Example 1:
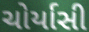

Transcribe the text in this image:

ચોર્યાસી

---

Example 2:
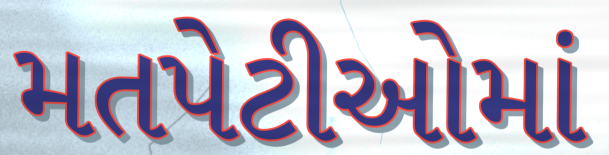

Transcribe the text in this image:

મતપેટીઓમાં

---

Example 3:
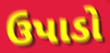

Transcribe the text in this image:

ઉપાડો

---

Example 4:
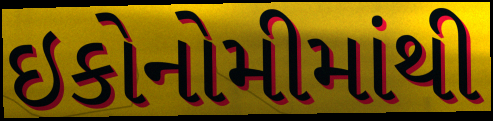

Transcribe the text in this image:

ઇકોનોમીમાંથી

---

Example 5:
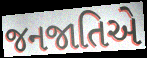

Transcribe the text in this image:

જનજાતિએ